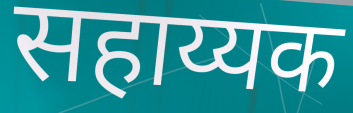
सहाय्यक